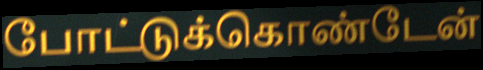
போட்டுக்கொண்டேன்